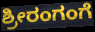
ಶ್ರೀರಂಗಂಗೆ